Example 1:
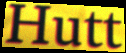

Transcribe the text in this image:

Hutt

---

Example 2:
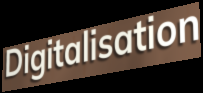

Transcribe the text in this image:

Digitalisation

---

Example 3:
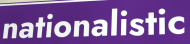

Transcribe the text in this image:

nationalistic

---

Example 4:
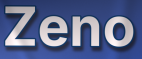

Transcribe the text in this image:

Zeno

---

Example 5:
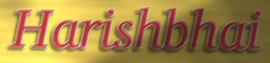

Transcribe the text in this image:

Harishbhai